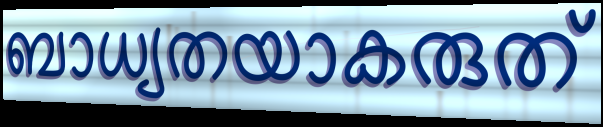
ബാധ്യതയാകരുത്